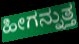
ಹೀಗನ್ನುತ್ತ